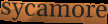
sycamore